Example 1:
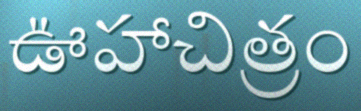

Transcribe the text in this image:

ఊహాచిత్రం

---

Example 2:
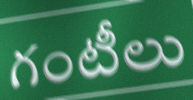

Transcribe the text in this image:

గంటీలు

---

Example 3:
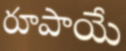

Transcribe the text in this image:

రూపాయే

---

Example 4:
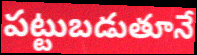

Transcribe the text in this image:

పట్టుబడుతూనే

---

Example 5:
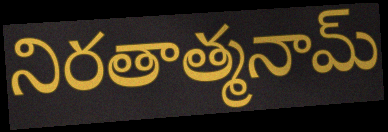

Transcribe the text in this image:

నిరతాత్మనామ్